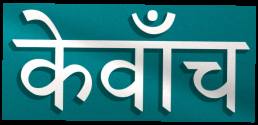
केवाँच